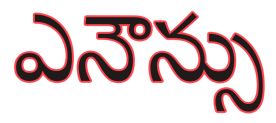
ఎనౌన్సు